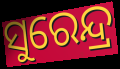
ସୁରେନ୍ଦ୍ର